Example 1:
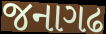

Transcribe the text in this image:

જનાગઢ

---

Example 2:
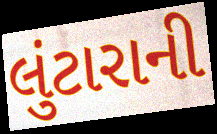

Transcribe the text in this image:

લુંટારાની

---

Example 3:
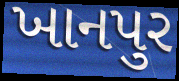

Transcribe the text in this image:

ખાનપુર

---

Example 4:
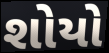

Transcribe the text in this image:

શોયો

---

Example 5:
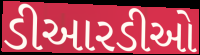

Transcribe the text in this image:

ડીઆરડીઓ